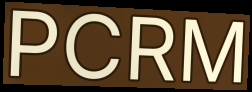
PCRM